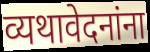
व्यथावेदनांना